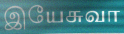
இயேசுவா